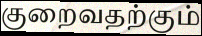
குறைவதற்கும்